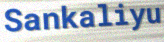
Sankaliyu